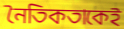
নৈতিকতাকেই